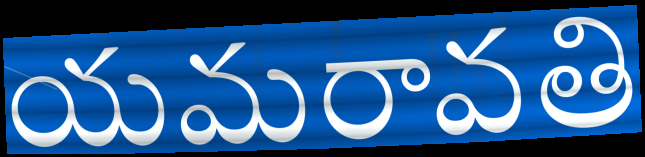
యమరావతి